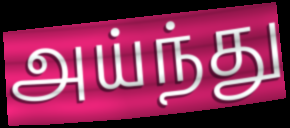
அய்ந்து